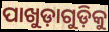
ପାଖୁଡ଼ାଗୁଡ଼ିକୁ